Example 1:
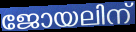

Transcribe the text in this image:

ജോയലിന്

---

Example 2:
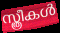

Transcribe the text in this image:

സ്ത്രീകൾ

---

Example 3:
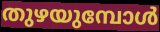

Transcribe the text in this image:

തുഴയുമ്പോൾ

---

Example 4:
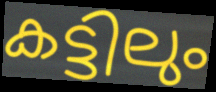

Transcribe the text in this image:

കട്ടിലും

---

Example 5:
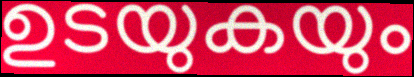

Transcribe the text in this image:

ഉടയുകയും